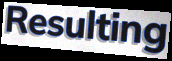
Resulting